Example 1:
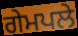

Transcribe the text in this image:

ਗੇਮਪਲੇ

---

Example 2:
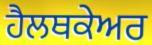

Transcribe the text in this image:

ਹੈਲਥਕੇਅਰ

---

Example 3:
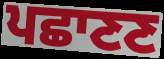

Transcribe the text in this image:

ਪਛਾਣਣ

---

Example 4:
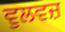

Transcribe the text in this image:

ਵੁਲਵਜ਼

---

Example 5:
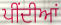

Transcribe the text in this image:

ਪੀਂਦੀਆਂ